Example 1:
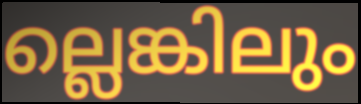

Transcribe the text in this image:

ല്ലെങ്കിലും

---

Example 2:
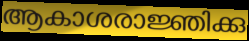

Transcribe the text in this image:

ആകാശരാജ്ഞിക്കു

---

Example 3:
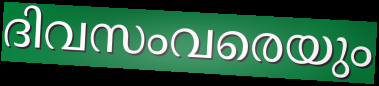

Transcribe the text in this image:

ദിവസംവരെയും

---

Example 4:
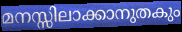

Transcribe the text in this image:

മനസ്സിലാക്കാനുതകും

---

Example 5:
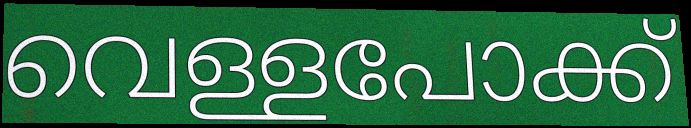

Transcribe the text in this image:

വെള്ളപോക്ക്